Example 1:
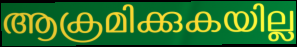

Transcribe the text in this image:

ആക്രമിക്കുകയില്ല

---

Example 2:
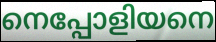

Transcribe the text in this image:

നെപ്പോളിയനെ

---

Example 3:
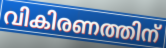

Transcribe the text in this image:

വികിരണത്തിന്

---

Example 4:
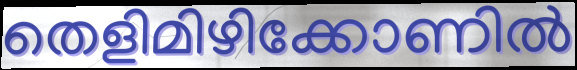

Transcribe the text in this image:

തെളിമിഴിക്കോണിൽ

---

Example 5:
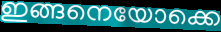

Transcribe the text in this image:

ഇങ്ങനെയോക്കെ